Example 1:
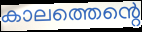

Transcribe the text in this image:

കാലത്തെന്റെ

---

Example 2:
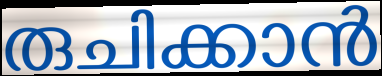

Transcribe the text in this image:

രുചിക്കാൻ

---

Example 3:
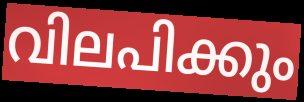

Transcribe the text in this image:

വിലപിക്കും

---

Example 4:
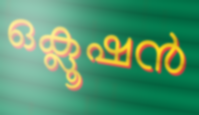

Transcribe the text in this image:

ഒക്ലൂഷൻ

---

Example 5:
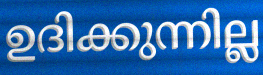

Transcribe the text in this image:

ഉദിക്കുന്നില്ല